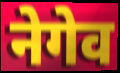
नेगेव